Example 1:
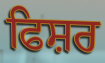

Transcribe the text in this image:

ਫਿਸ਼ਰ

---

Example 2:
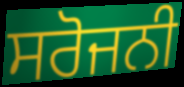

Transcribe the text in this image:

ਸਰੋਜਨੀ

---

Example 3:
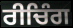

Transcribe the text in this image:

ਰੀਚਿੰਗ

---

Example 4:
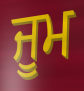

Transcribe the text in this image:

ਜੂਮ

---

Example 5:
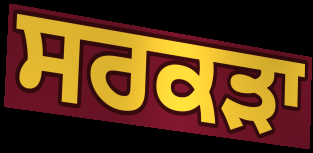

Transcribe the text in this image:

ਸਰਕੜਾ